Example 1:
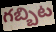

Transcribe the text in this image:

గబ్బిట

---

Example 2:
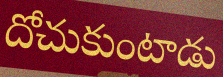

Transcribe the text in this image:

దోచుకుంటాడు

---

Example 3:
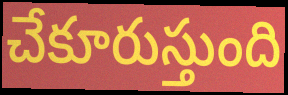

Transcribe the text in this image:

చేకూరుస్తుంది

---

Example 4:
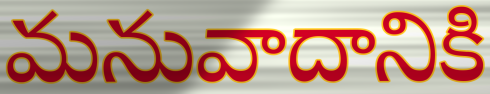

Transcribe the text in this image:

మనువాదానికి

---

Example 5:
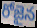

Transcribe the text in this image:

రోజైన